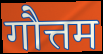
गौत्तम